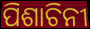
ପିଶାଚିନୀ